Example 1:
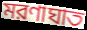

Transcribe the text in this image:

মরণাঘাত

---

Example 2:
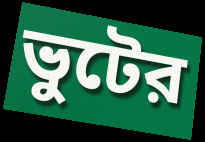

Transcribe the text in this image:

ভুটের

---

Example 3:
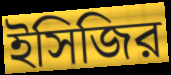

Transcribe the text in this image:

ইসিজির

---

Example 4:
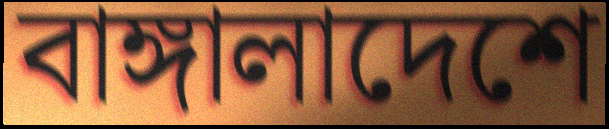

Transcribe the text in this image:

বাঙ্গালাদেশে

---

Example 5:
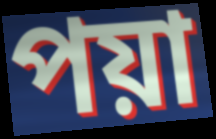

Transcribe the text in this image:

পয়া